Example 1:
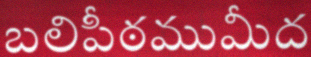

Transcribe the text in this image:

బలిపీఠముమీద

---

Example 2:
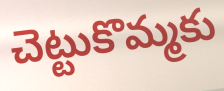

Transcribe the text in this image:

చెట్టుకొమ్మకు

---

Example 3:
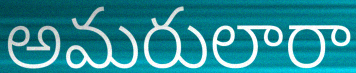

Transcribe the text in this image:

అమరులారా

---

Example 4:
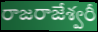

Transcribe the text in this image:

రాజరాజేశ్వరీ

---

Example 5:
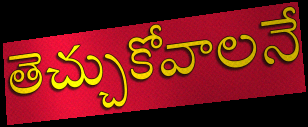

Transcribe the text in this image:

తెచ్చుకోవాలనే